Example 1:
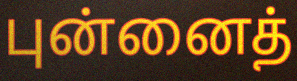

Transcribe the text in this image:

புன்னைத்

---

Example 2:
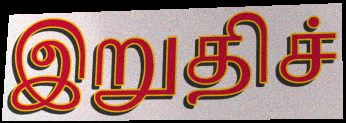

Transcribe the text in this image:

இறுதிச்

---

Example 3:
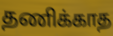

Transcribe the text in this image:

தணிக்காத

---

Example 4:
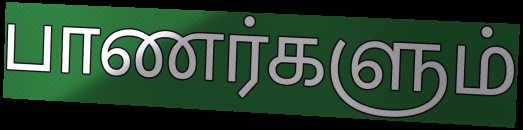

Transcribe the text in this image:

பாணர்களும்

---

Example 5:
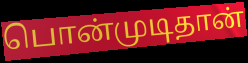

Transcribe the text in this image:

பொன்முடிதான்